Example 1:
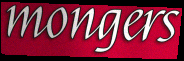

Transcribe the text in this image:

mongers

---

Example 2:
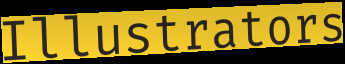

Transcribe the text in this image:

Illustrators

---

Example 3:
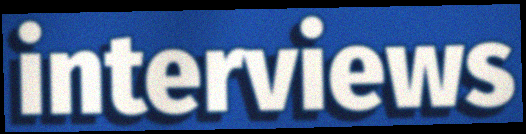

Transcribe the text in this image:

interviews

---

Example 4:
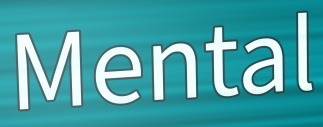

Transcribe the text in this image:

Mental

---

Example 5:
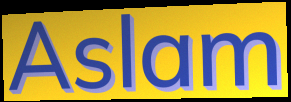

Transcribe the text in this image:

Aslam